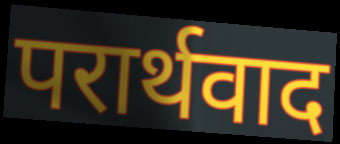
परार्थवाद